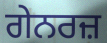
ਗੇਨਰਜ਼